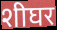
शीघर